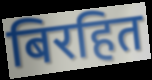
बिरहित